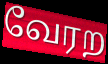
வேரற